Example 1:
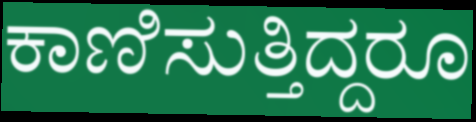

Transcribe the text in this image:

ಕಾಣಿಸುತ್ತಿದ್ದರೂ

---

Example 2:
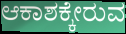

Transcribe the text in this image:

ಆಕಾಶಕ್ಕೇರುವ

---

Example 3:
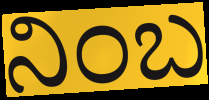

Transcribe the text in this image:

ನಿಂಬ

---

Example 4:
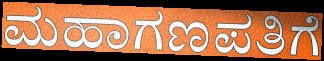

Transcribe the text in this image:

ಮಹಾಗಣಪತಿಗೆ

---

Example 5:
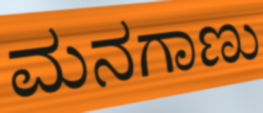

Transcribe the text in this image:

ಮನಗಾಣು